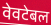
वेवटेबल